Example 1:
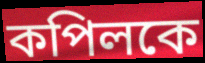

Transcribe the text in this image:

কপিলকে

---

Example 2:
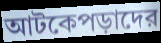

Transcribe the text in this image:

আটকেপড়াদের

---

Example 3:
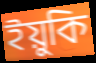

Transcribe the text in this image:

ইয়ুকি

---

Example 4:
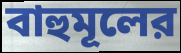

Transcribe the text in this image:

বাহুমূলের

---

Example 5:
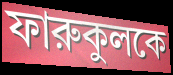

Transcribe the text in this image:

ফারুকুলকে